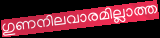
ഗുണനിലവാരമില്ലാത്ത